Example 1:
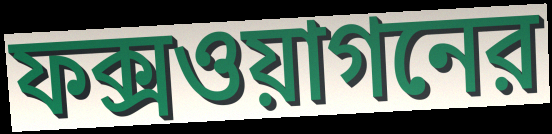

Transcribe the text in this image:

ফক্সওয়াগনের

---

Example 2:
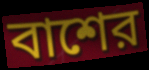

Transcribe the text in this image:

বাশের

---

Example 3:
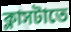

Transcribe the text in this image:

ক্লাসটাতে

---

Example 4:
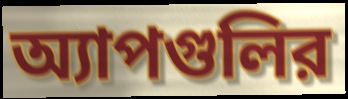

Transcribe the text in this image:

অ্যাপগুলির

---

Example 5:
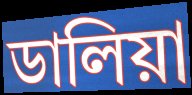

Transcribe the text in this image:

ডালিয়া